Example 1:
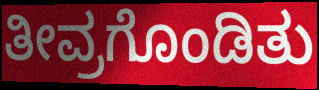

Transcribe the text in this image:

ತೀವ್ರಗೊಂಡಿತು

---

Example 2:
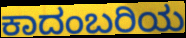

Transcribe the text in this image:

ಕಾದಂಬರಿಯ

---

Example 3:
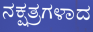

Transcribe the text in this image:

ನಕ್ಷತ್ರಗಳಾದ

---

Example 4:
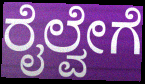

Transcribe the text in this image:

ರೈಲ್ವೇಗೆ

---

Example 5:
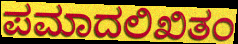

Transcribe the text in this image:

ಪಮಾದಲಿಖಿತಂ